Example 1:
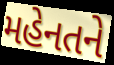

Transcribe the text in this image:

મહેનતને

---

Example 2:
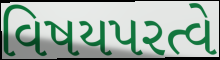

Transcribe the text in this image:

વિષયપરત્વે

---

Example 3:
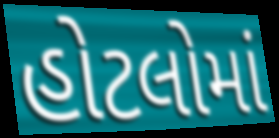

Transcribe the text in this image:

હોટલોમાં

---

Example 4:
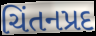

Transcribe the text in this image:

ચિંતનપ્રદ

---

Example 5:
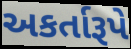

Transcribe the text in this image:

અકર્તારૂપે